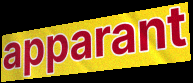
apparant